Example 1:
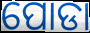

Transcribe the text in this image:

ପୋଡା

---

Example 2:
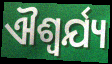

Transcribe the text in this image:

ଐଶ୍ଵର୍ଯ୍ୟ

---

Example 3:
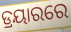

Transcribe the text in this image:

ଡ୍ରୟାରରେ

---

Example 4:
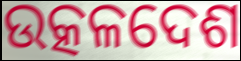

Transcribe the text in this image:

ଉତ୍କଳଦେଶ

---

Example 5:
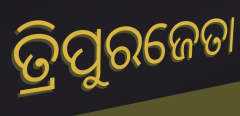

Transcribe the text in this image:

ତ୍ରିପୁରଜେତା